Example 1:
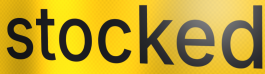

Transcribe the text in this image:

stocked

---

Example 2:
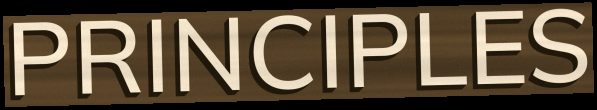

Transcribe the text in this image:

PRINCIPLES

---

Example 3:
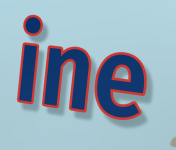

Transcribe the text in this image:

ine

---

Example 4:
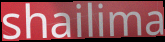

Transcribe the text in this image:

shailima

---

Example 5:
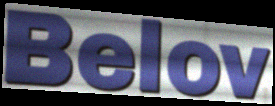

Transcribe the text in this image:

Belov